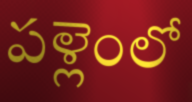
పళ్లెంలో